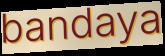
bandaya